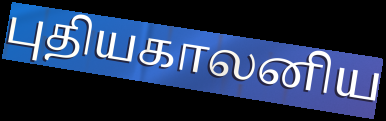
புதியகாலனிய